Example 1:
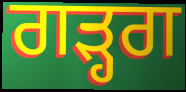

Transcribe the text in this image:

ਗੜ੍ਹਗ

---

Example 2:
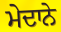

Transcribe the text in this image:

ਮੇਦਾਨੇ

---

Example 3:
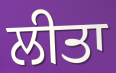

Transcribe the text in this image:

ਲੀਤਾ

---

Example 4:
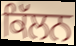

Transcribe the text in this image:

ਕਿੱਲਨ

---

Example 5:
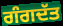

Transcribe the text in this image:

ਗੰਗਦੱਤ